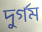
দুৰ্গম